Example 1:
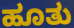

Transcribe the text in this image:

ಹೂತು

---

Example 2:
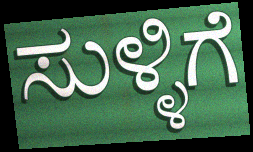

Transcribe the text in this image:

ಸುಳ್ಳಿಗೆ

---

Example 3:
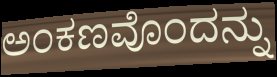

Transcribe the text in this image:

ಅಂಕಣವೊಂದನ್ನು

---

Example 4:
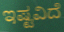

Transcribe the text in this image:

ಇಷ್ಟವಿದೆ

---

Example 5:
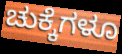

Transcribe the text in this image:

ಚುಕ್ಕೆಗಳೂ